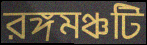
রঙ্গমঞ্চটি